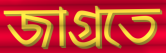
জাগ্রতে